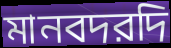
মানবদরদি